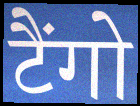
टैंगो